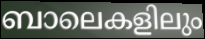
ബാലെകളിലും